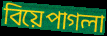
বিয়েপাগলা